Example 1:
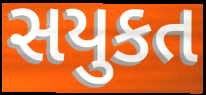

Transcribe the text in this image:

સયુકત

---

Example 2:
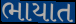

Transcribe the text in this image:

ભાયાત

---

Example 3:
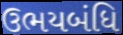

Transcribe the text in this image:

ઉભયબંધિ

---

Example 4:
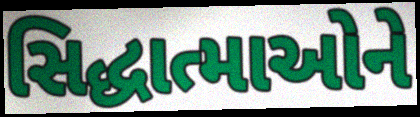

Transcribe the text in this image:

સિદ્ધાત્માઓને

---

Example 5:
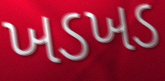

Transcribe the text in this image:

ખડખડ